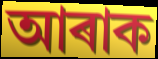
আৰাক